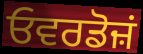
ਓਵਰਡੋਜ਼ਂ